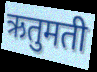
ऋतुमती